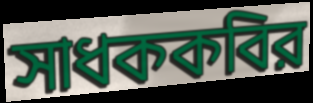
সাধককবির